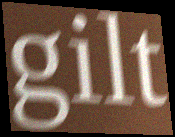
gilt